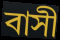
বাসী